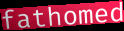
fathomed